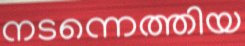
നടന്നെത്തിയ